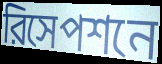
রিসেপশনে